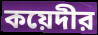
কয়েদীর